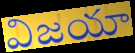
విజయా